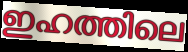
ഇഹത്തിലെ